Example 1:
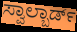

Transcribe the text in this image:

ಸ್ವಾಲ್ಬಾರ್ಡ್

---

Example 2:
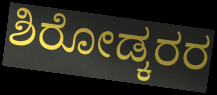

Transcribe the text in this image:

ಶಿರೋಡ್ಕರರ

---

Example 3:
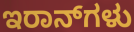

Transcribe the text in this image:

ಇರಾನ್‌ಗಳು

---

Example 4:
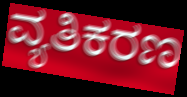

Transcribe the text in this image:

ವ್ಯತಿಕರಣ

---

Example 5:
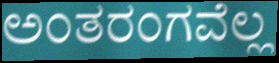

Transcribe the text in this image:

ಅಂತರಂಗವೆಲ್ಲ